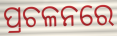
ପ୍ରଚଳନରେ